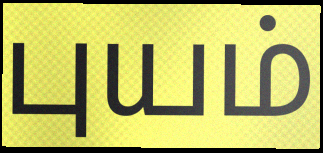
புயம்